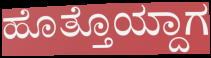
ಹೊತ್ತೊಯ್ದಾಗ